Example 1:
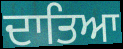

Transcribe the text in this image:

ਦਾਤਿਆ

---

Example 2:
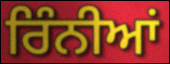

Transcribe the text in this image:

ਰਿੰਨੀਆਂ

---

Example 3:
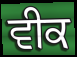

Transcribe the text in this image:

ਵੀਕ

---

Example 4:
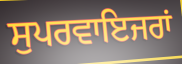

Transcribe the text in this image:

ਸੁਪਰਵਾਇਜਰਾਂ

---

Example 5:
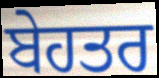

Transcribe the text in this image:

ਬੇਹਤਰ